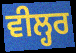
ਵੀਲ੍ਹਰ